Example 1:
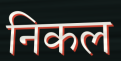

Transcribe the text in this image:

निकल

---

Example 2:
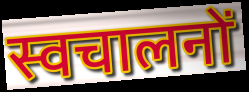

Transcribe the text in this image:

स्वचालनों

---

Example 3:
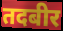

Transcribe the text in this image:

तदबीर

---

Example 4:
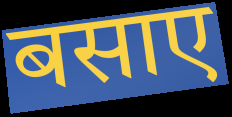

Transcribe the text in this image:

बसाए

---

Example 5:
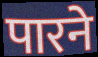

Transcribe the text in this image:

पारने